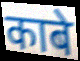
काबे